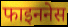
फाइननेस